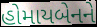
હોમાયબેનને